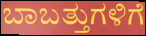
ಬಾಬತ್ತುಗಳಿಗೆ